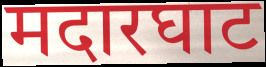
मदारघाट